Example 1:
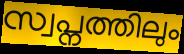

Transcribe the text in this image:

സ്വപ്നത്തിലും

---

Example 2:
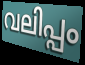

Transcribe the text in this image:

വലിപ്പം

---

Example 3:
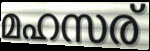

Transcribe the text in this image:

മഹസര്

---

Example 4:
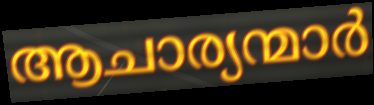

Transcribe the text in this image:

ആചാര്യന്മാർ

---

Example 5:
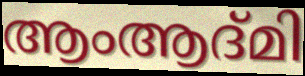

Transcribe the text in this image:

ആംആദ്മി